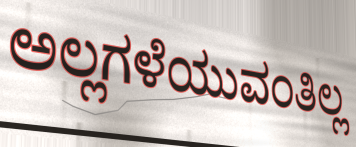
ಅಲ್ಲಗಳೆಯುವಂತಿಲ್ಲ